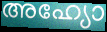
അഹ്യോ